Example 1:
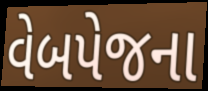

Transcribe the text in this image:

વેબપેજના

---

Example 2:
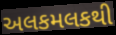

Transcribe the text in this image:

અલકમલકથી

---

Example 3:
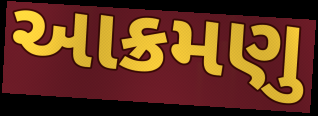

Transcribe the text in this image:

આક્રમણુ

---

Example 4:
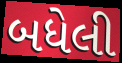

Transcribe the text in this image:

બધેલી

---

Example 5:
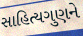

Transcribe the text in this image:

સાહિત્યગુણને